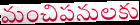
మంచిపనులకు